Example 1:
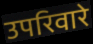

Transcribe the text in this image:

उपरिवारे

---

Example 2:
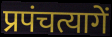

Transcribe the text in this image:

प्रपंचत्यागें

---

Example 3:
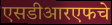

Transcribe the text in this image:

एसडीआरएफचे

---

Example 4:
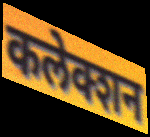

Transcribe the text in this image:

कलेक्शन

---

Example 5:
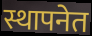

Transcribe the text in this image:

स्थापनेत